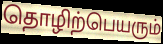
தொழிற்பெயரும்